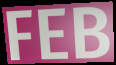
FEB